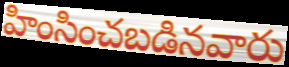
హింసించబడినవారు